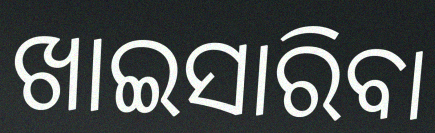
ଖାଇସାରିବା